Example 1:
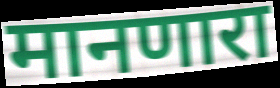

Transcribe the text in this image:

मानणारा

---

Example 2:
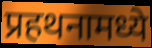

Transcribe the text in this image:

प्रहथनामध्ये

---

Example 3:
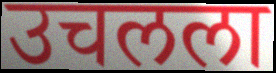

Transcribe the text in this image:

उचलला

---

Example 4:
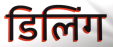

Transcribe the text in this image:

डिलिंग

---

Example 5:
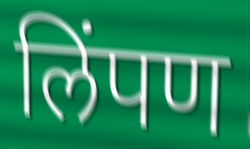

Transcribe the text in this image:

लिंपण